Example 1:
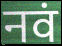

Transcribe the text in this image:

नवं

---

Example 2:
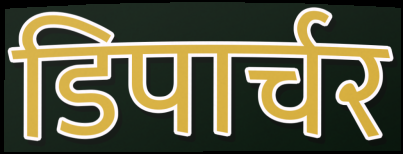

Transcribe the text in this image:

डिपार्चर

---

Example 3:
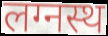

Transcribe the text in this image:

लग्नस्थ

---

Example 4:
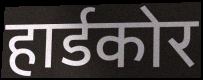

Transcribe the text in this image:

हार्डकोर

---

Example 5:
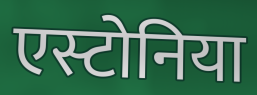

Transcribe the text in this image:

एस्‍टोनिया